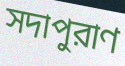
সদাপুরাণ